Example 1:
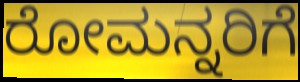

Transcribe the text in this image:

ರೋಮನ್ನರಿಗೆ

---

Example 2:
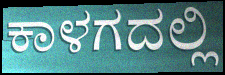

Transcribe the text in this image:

ಕಾಳಗದಲ್ಲಿ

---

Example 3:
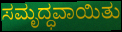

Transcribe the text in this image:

ಸಮೃದ್ಧವಾಯಿತು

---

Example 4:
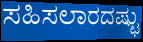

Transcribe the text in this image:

ಸಹಿಸಲಾರದಷ್ಟು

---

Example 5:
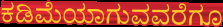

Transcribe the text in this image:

ಕಡಿಮೆಯಾಗುವವರೆಗೂ